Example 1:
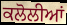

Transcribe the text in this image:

ਕਲੋਲੀਆਂ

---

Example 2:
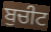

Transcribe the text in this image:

ਬੁਚੀਟ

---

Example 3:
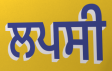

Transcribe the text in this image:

ਲਪਸੀ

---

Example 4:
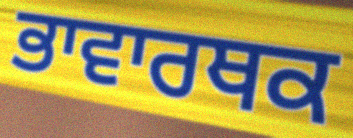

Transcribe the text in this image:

ਭਾਵਾਰਥਕ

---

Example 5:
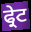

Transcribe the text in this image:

ਫ੍ਰੇਟ